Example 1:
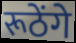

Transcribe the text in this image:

रूठेंगे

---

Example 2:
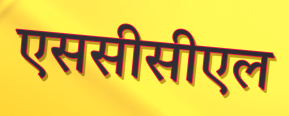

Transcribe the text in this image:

एससीसीएल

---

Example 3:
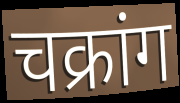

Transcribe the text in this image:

चक्रांग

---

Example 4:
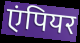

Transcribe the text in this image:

एंपियर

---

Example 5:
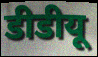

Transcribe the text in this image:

डीडीयू